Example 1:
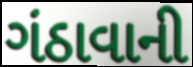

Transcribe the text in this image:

ગંઠાવાની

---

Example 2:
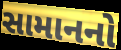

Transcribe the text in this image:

સામાનનો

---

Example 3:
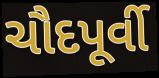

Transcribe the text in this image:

ચૌદપૂર્વી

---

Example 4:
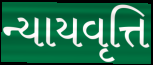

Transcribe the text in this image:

ન્યાયવૃત્તિ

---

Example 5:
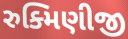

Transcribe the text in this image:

રુક્મિણીજી